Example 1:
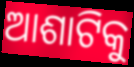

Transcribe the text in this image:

ଆଶାଟିକୁ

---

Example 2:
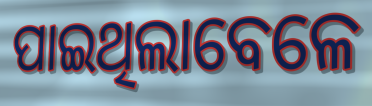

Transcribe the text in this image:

ପାଇଥିଲାବେଳେ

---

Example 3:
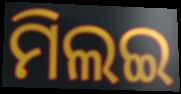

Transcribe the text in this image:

ମିଲଇ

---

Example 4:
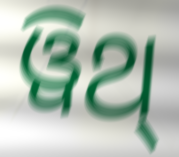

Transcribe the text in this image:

ୱିଥ୍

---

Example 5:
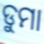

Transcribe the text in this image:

ଡୁମା